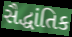
સૈદ્ધાંતિક